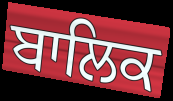
ਬਾਲਿਕ